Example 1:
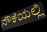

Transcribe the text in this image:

ನೌಕೆಯಲ್ಲಿ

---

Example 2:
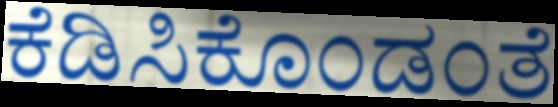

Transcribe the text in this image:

ಕೆಡಿಸಿಕೊಂಡಂತೆ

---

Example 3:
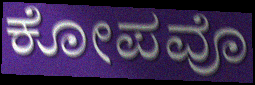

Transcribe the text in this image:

ಕೋಪವೊ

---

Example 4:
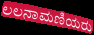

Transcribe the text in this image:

ಲಲನಾಮಣಿಯರು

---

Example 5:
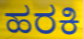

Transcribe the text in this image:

ಹರಕಿ